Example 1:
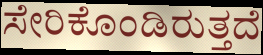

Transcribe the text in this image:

ಸೇರಿಕೊಂಡಿರುತ್ತದೆ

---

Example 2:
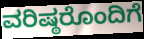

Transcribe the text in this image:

ವರಿಷ್ಠರೊಂದಿಗೆ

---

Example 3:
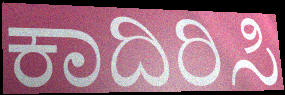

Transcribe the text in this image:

ಕಾದಿರಿಸಿ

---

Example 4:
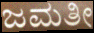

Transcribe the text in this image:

ಜಮತೀ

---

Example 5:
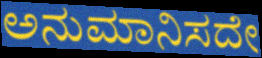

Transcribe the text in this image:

ಅನುಮಾನಿಸದೇ